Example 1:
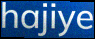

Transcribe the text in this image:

hajiye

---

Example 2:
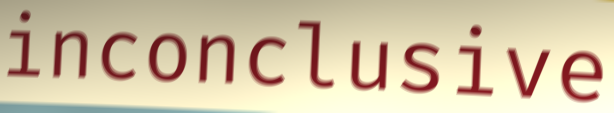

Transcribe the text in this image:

inconclusive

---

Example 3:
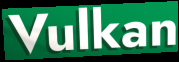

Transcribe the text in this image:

Vulkan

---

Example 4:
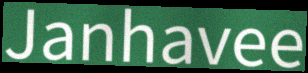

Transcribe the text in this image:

Janhavee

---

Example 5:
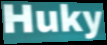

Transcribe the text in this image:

Huky